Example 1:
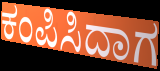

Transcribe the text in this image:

ಕಂಪಿಸಿದಾಗ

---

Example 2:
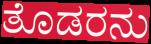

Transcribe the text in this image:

ತೊಡರನು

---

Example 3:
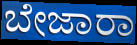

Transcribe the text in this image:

ಬೇಜಾರಾ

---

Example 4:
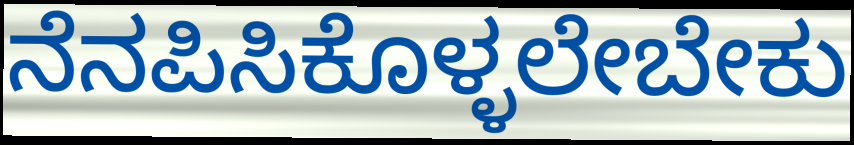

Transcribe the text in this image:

ನೆನಪಿಸಿಕೊಳ್ಳಲೇಬೇಕು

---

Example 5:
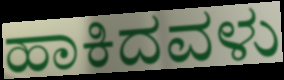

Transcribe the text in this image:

ಹಾಕಿದವಳು